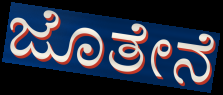
ಜೊತೇನೆ